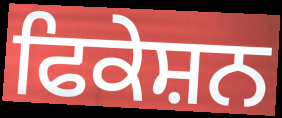
ਫਿਕੇਸ਼ਨ